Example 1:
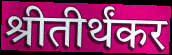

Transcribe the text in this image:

श्रीतीर्थंकर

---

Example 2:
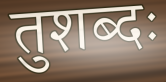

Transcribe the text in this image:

तुशब्दः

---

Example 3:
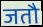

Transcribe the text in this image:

जतौ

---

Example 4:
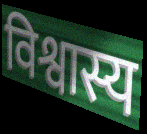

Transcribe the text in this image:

विश्वास्य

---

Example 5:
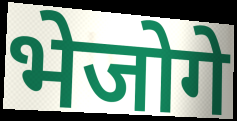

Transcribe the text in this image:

भेजोगे